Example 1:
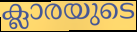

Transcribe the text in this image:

ക്ലാരയുടെ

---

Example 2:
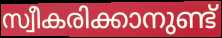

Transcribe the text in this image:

സ്വീകരിക്കാനുണ്ട്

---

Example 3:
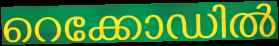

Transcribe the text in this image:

റെക്കോഡിൽ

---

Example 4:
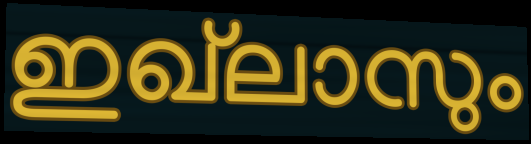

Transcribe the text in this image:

ഇഖ്‌ലാസും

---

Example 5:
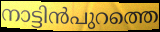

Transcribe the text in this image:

നാട്ടിൻപുറത്തെ